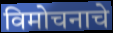
विमोचनाचे